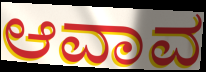
ಆವಾವ